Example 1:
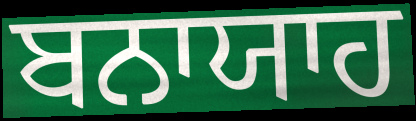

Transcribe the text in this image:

ਬਨਾਯਾਹ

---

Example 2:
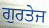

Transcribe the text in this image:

ਗੁਰਤੇਜ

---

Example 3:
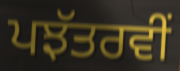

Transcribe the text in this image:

ਪਝੱਤਰਵੀਂ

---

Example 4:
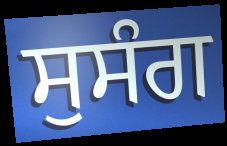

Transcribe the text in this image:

ਸੁਸੰਗ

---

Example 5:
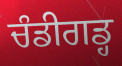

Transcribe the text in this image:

ਚੰਡੀਗਡ੍ਹ